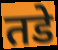
तडे